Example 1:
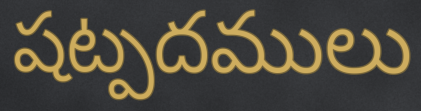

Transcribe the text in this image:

షట్పదములు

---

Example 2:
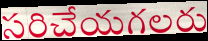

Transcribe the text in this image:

సరిచేయగలరు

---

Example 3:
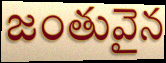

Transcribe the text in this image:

జంతువైన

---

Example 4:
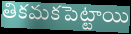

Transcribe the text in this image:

తికమకపెట్టాయి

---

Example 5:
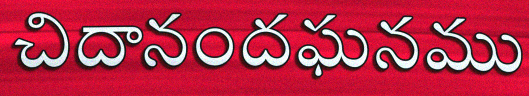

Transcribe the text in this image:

చిదానందఘనము